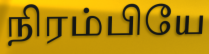
நிரம்பியே